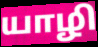
யாழி